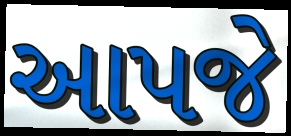
આપજે